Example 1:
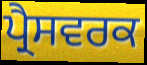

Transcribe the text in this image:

ਪ੍ਰੈਸਵਰਕ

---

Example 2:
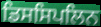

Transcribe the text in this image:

ਡਿਸਸਿਪਲਿਨ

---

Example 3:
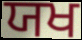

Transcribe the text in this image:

ਯਖ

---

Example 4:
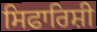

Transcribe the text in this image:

ਸਿਫਾਰਿਸ਼ੀ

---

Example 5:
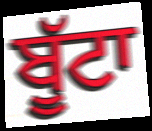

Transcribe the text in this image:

ਬੂੱਟਾ